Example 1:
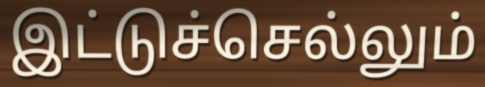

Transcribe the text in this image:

இட்டுச்செல்லும்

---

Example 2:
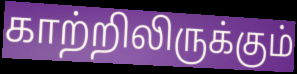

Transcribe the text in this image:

காற்றிலிருக்கும்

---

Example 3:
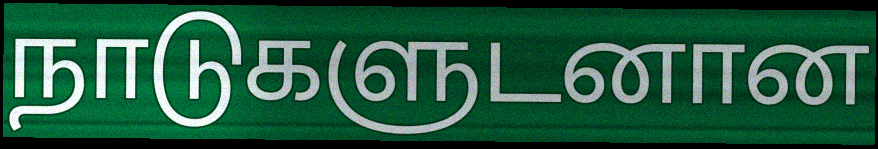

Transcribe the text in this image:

நாடுகளுடனான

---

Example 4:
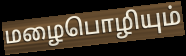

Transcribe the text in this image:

மழைபொழியும்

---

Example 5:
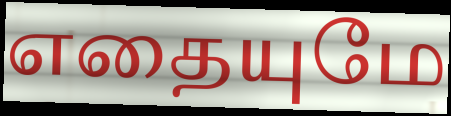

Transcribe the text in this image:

எதையுமே